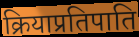
क्रियाप्रतिपाति